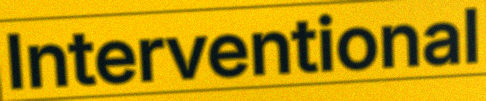
Interventional